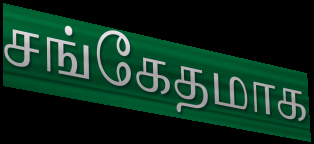
சங்கேதமாக